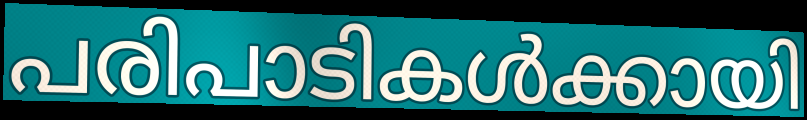
പരിപാടികൾക്കായി